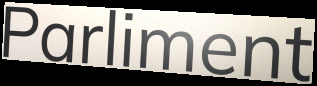
Parliment